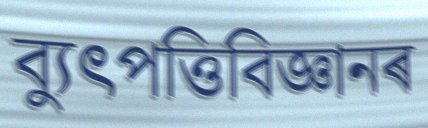
ব্যুৎপত্তিবিজ্ঞানৰ